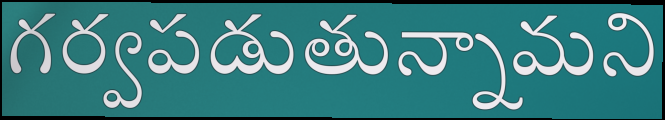
గర్వపడుతున్నామని